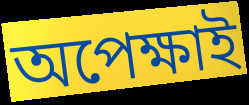
অপেক্ষাই